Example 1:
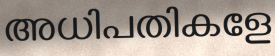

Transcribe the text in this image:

അധിപതികളേ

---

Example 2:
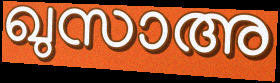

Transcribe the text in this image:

ഖുസാഅ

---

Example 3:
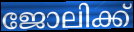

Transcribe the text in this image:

ജോലിക്ക്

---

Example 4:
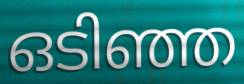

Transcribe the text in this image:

ഒടിഞ്ഞ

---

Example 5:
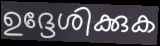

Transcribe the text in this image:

ഉദ്ദേശിക്കുക